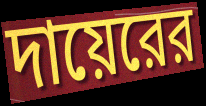
দায়েরের